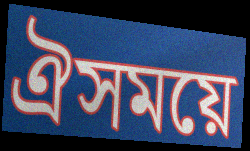
ঐসময়ে